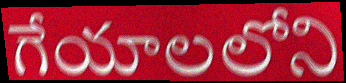
గేయాలలోని